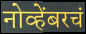
नोव्हेंबरचं